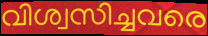
വിശ്വസിച്ചവരെ